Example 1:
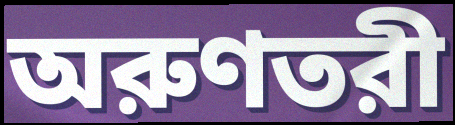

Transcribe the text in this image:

অরুণতরী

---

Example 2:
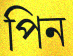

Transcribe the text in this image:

পিন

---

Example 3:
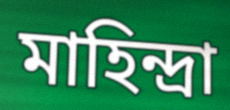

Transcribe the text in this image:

মাহিন্দ্রা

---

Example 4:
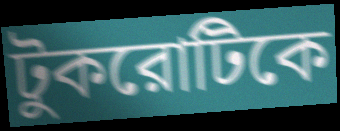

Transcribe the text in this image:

টুকরোটিকে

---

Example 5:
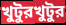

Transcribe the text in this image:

খুটুরখুটুর